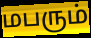
மபரும்